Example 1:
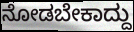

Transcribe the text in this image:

ನೋಡಬೇಕಾದ್ದು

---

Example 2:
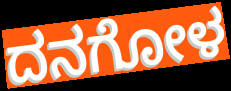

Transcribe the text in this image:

ದನಗೋಳ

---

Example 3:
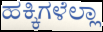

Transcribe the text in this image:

ಹಕ್ಕಿಗಳೆಲ್ಲಾ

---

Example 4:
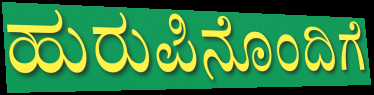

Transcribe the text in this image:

ಹುರುಪಿನೊಂದಿಗೆ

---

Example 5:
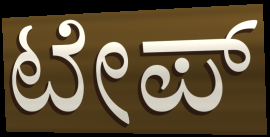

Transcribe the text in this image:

ಟೇಪ್